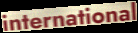
international